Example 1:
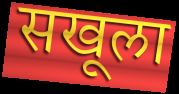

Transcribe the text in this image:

सखूला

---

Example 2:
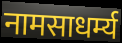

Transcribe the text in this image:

नामसाधर्म्य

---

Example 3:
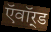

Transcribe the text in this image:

ऍवॉर्ड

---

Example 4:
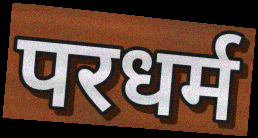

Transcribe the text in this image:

परधर्म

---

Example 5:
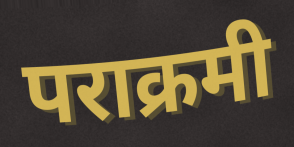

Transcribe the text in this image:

पराक्रमी